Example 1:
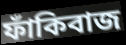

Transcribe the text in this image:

ফাঁকিবাজ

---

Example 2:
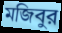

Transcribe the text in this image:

মজিবুর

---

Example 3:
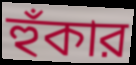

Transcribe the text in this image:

হুঁকার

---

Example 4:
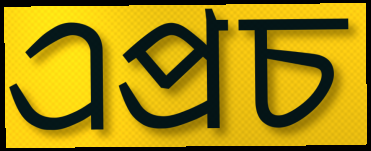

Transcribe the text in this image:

এপ্রচ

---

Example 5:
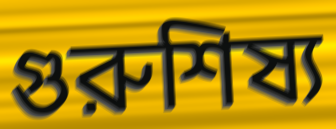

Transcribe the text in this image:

গুরুশিষ্য